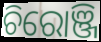
ଚିରୋଞ୍ଜି